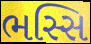
ભસ્સિ